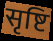
सृष्टि